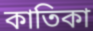
কাতিকা